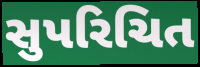
સુપરિચિત